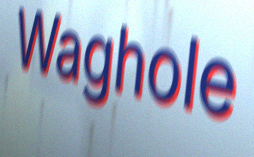
Waghole